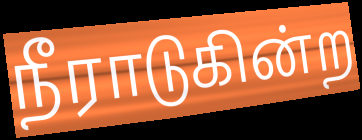
நீராடுகின்ற